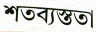
শতব্যস্ততা